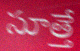
సూత్తే